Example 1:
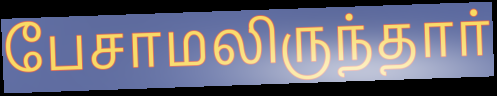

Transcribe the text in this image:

பேசாமலிருந்தார்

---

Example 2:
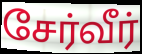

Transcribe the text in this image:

சேர்வீர்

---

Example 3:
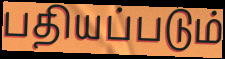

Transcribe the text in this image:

பதியப்படும்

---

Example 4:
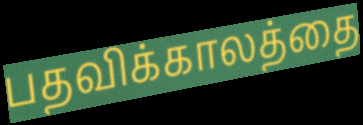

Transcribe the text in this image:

பதவிக்காலத்தை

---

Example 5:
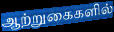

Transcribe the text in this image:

ஆற்றுகைகளில்